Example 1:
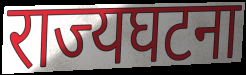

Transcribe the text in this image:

राज्यघटना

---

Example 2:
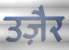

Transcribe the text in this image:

उज़ैर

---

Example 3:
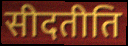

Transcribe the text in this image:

सीदतीति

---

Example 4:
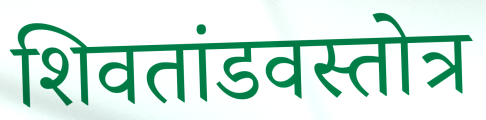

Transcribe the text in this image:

शिवतांडवस्तोत्र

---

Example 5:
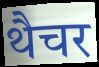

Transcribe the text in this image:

थैचर